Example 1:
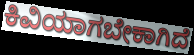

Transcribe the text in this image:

ಕಿವಿಯಾಗಬೇಕಾಗಿದೆ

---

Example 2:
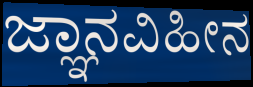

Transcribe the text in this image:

ಜ್ಞಾನವಿಹೀನ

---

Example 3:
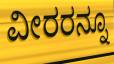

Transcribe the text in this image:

ವೀರರನ್ನೂ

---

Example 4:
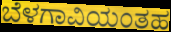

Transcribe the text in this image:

ಬೆಳಗಾವಿಯಂತಹ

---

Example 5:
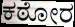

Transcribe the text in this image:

ಕಠೋರ